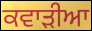
ਕਵਾੜੀਆ